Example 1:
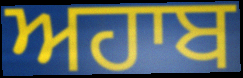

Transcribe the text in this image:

ਅਹਾਬ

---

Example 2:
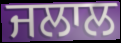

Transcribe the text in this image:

ਜਲਾਲ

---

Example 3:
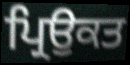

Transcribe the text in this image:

ਪ੍ਰਿਉਕਤ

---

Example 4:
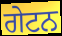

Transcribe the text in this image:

ਗੇਟਨ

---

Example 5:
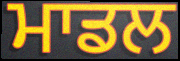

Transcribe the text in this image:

ਮਾਡਲ